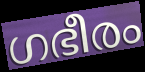
ഗഭീരം